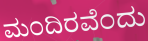
ಮಂದಿರವೆಂದು